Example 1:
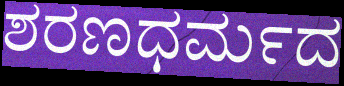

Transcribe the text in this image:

ಶರಣಧರ್ಮದ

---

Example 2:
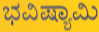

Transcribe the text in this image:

ಭವಿಷ್ಯಾಮಿ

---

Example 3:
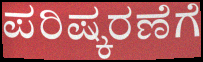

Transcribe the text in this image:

ಪರಿಷ್ಕರಣೆಗೆ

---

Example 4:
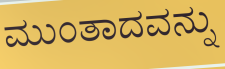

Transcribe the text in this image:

ಮುಂತಾದವನ್ನು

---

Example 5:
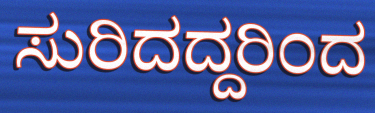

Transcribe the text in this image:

ಸುರಿದದ್ದರಿಂದ